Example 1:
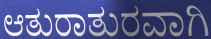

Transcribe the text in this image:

ಆತುರಾತುರವಾಗಿ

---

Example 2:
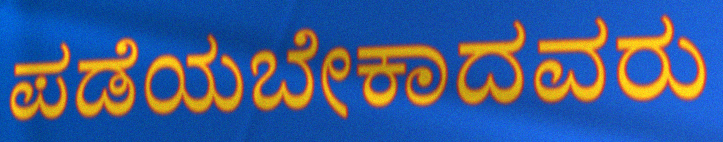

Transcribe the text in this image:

ಪಡೆಯಬೇಕಾದವರು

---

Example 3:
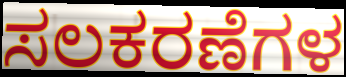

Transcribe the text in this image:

ಸಲಕರಣೆಗಳ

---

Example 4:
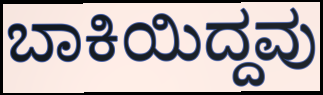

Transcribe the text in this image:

ಬಾಕಿಯಿದ್ದವು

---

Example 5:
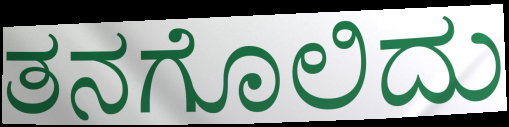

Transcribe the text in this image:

ತನಗೊಲಿದು